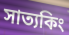
সাত্যকিং